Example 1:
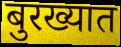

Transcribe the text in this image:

बुरख्यात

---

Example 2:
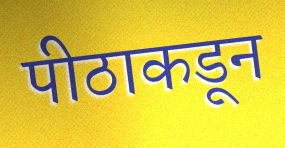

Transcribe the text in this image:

पीठाकडून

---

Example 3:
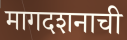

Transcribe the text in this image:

मागदशनाची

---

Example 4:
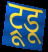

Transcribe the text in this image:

ट्रूडू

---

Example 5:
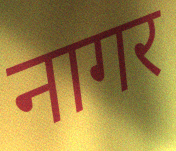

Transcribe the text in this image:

नागर